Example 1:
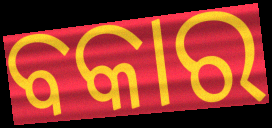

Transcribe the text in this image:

ବକାର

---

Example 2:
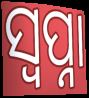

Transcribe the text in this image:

ସ୍ୱପ୍ନା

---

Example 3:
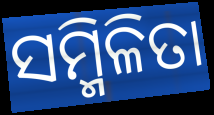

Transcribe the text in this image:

ସମ୍ମିଳିତା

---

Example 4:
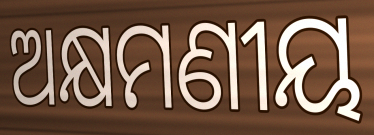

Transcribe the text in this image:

ଅକ୍ଷମଣୀୟ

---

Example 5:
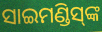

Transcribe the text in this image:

ସାଇମଣ୍ଡିସ୍‍ଙ୍କ